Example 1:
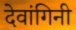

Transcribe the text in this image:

देवांगिनी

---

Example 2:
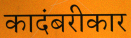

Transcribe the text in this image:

कादंबरीकार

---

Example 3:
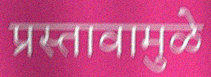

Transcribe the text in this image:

प्रस्तावामुळे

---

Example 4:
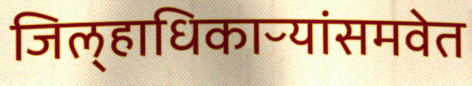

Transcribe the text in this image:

जिल्हाधिकाऱ्यांसमवेत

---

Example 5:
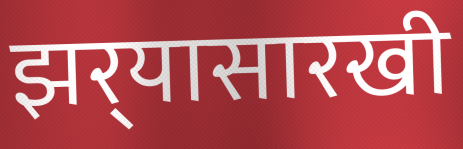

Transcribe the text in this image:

झर्‍यासारखी